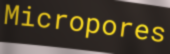
Micropores